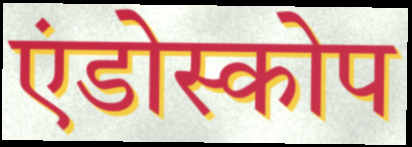
एंडोस्कोप